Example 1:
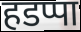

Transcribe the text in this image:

हडप्पा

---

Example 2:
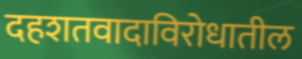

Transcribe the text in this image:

दहशतवादाविरोधातील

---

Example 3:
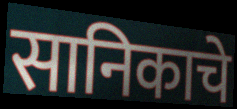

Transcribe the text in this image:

सानिकाचे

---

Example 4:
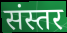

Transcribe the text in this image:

संस्तर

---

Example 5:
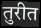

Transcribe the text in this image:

तुरीत